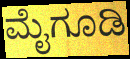
ಮೈಗೂಡಿ